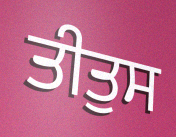
ਤੀਤੁਸ